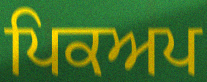
ਪਿਕਅਪ